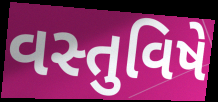
વસ્તુવિષે